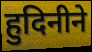
हुदिनीने